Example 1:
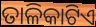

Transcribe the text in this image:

ତାଳିକାଟିଏ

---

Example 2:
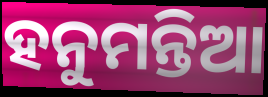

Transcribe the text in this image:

ହନୁମନ୍ତିଆ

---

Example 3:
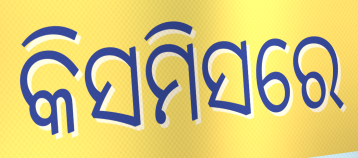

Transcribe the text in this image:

କିସମିସରେ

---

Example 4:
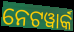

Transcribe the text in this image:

ନେଟୱାର୍କ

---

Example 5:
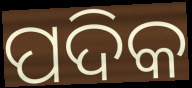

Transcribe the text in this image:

ପଦିକ